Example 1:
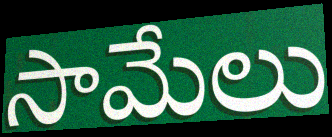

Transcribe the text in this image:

సామేలు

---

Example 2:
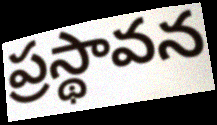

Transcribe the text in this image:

ప్రస్థావన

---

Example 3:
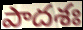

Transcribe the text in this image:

పాదశః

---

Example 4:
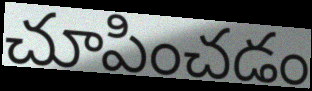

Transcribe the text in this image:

చూపించడం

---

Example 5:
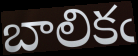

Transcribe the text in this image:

బాలికఁ